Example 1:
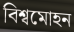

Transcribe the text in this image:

বিশ্বমোহন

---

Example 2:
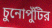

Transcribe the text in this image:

চুনোপুঁটির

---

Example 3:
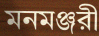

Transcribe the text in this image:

মনমঞ্জরী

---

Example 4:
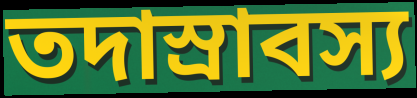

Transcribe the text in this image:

তদাস্রাবস্য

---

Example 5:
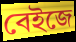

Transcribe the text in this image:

বেইজে